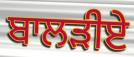
ਬਾਲੜੀਏ